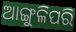
ଆଙ୍ଗୁଳିପରି